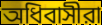
অধিবাসীরা